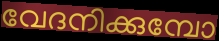
വേദനിക്കുമ്പോ